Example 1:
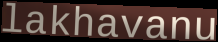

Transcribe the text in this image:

lakhavanu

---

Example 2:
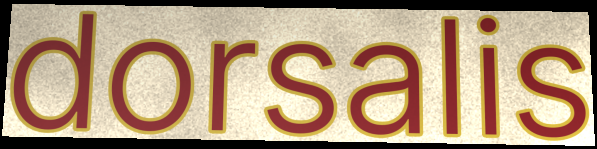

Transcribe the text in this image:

dorsalis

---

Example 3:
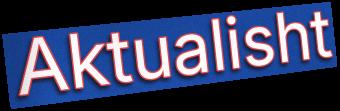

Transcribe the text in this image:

Aktualisht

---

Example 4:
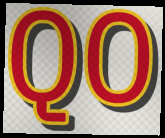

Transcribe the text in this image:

QO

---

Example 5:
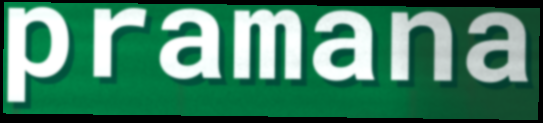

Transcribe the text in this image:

pramana